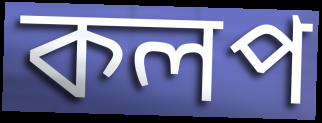
কলপ